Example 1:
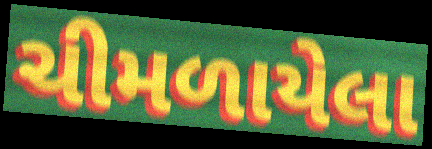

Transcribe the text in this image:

ચીમળાયેલા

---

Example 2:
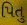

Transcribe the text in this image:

પિતુ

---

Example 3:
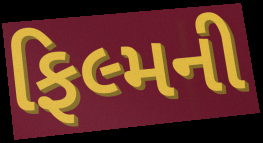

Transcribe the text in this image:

ફિલ્મની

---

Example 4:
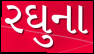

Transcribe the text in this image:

રઘુના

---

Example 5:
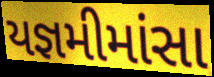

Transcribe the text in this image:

યજ્ઞમીમાંસા